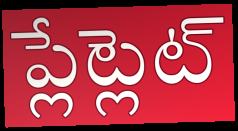
ప్లేట్లెట్